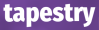
tapestry